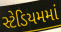
સ્ટેડિયમમાં